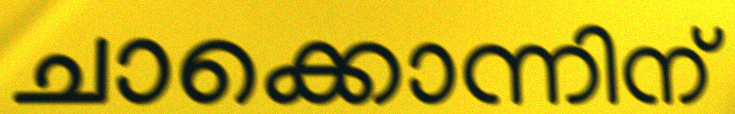
ചാക്കൊന്നിന്